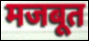
मजबूत